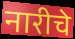
नारीचे